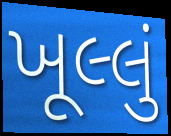
ખૂલ્લું